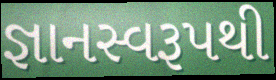
જ્ઞાનસ્વરૂપથી